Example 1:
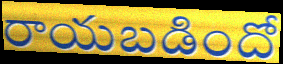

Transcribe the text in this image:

రాయబడిందో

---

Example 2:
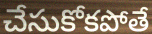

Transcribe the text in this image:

చేసుకోకపోతే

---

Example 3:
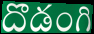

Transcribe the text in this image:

దొడంగి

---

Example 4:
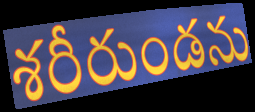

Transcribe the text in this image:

శరీరుండను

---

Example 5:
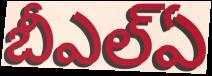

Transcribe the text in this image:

బీఎల్ఏ